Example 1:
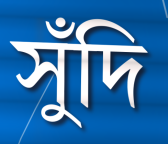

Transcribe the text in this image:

সুঁদি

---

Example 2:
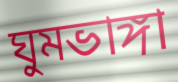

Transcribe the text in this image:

ঘুমভাঙ্গা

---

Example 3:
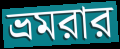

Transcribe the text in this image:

ভ্রমরার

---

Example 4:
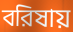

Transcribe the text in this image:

বরিষায়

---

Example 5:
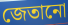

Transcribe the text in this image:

জেতানো